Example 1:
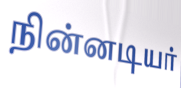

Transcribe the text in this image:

நின்னடியர்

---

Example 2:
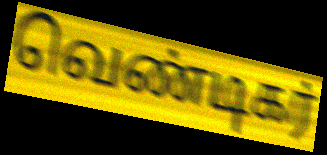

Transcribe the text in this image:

வெண்டிகர்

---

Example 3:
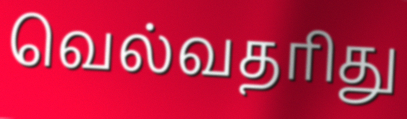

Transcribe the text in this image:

வெல்வதரிது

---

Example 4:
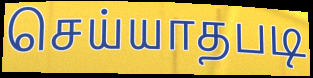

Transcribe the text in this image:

செய்யாதபடி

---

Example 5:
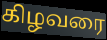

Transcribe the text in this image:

கிழவரை